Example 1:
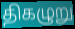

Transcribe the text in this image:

திகழுறு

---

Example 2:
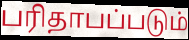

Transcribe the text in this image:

பரிதாபப்படும்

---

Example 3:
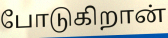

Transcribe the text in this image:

போடுகிறான்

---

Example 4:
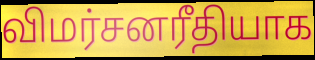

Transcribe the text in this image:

விமர்சனரீதியாக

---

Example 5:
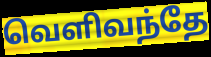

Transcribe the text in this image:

வெளிவந்தே